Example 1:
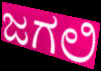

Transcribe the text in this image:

ಜಗಲಿ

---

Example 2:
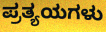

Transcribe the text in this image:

ಪ್ರತ್ಯಯಗಳು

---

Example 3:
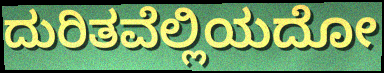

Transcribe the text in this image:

ದುರಿತವೆಲ್ಲಿಯದೋ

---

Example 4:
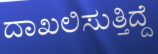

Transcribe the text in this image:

ದಾಖಲಿಸುತ್ತಿದ್ದೆ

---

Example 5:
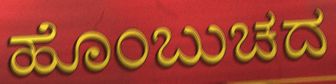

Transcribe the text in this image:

ಹೊಂಬುಚದ